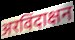
अरविंदाक्षन